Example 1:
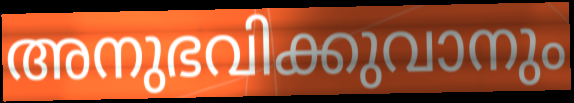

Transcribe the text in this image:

അനുഭവിക്കുവാനും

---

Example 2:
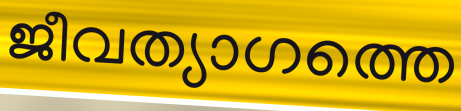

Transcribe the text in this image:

ജീവത്യാഗത്തെ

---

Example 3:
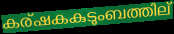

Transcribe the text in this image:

കര്ഷകകുടുംബത്തില്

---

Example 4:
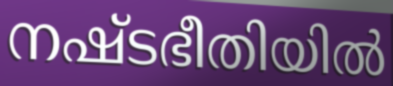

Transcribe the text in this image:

നഷ്ടഭീതിയിൽ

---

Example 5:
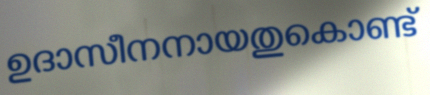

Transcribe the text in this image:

ഉദാസീനനായതുകൊണ്ട്